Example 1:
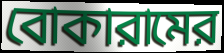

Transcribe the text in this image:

বোকারামের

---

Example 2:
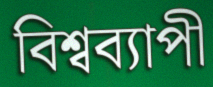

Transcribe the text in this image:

বিশ্বব্যাপী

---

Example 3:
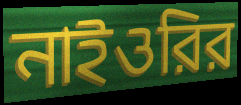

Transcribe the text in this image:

নাইওরির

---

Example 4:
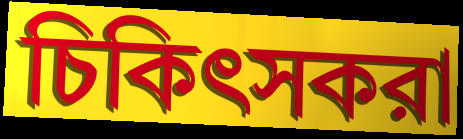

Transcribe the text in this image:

চিকিৎসকরা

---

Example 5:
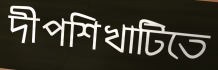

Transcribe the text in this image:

দীপশিখাটিতে